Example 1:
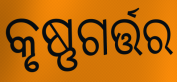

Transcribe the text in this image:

କୃଷ୍ଣଗର୍ତ୍ତର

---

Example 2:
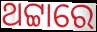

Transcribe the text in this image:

ଥଟ୍ଟାରେ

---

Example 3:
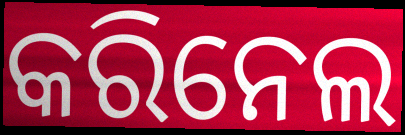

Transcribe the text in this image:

କରିନେଲ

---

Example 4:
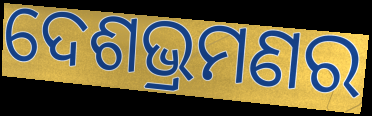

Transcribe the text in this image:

ଦେଶଭ୍ରମଣର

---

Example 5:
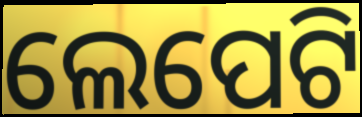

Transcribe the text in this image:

ଲେପେଟି